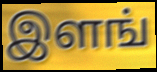
இளங்